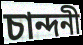
চান্দনী